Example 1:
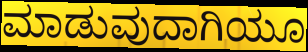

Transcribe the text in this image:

ಮಾಡುವುದಾಗಿಯೂ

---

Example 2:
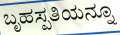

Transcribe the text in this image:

ಬೃಹಸ್ಪತಿಯನ್ನೂ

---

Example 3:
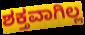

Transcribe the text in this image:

ಶಕ್ತವಾಗಿಲ್ಲ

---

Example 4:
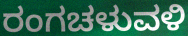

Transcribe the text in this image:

ರಂಗಚಳುವಳಿ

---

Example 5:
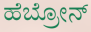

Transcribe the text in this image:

ಹೆಬ್ರೋನ್